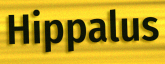
Hippalus